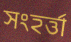
সংহর্ত্তা